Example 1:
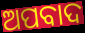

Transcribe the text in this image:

ଅପବାଦ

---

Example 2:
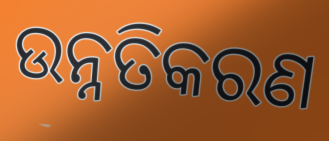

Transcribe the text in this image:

ଉନ୍ନତିକରଣ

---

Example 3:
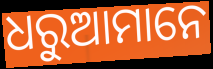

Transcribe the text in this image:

ଧରୁଆମାନେ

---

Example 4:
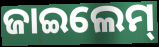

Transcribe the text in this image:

ଜାଇଲେମ୍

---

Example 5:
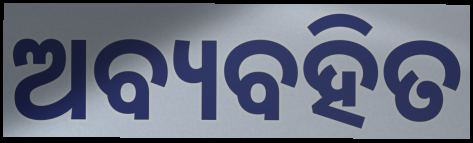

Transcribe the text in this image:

ଅବ୍ୟବହିତ